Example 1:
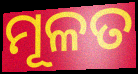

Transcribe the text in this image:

ମୂଳତ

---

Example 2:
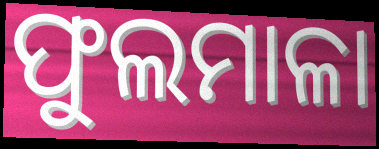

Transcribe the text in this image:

ଫୁଲମାଳା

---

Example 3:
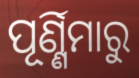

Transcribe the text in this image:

ପୂର୍ଣ୍ଣିମାରୁ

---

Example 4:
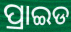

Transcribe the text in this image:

ପ୍ରାଇଡ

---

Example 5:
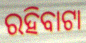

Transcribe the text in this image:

ରହିବାଟା